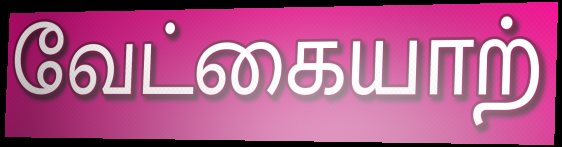
வேட்கையாற்